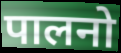
पालनो